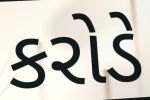
કરોડે